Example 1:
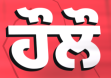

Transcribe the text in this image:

ਹੌਲੌ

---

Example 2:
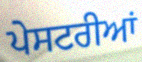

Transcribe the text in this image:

ਪੇਸਟਰੀਆਂ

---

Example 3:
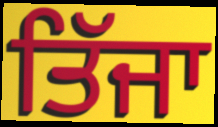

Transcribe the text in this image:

ਤਿੱਜਾ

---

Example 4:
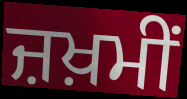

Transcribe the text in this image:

ਜ਼ਖ਼ਮੀਂ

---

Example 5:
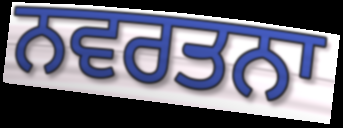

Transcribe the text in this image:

ਨਵਰਤਨਾ